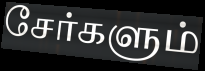
சேர்களும்